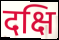
दक्षि